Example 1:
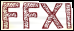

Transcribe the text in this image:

FFXI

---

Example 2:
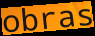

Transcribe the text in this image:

obras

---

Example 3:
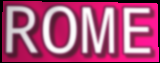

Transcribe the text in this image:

ROME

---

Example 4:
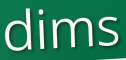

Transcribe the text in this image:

dims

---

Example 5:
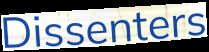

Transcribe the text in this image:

Dissenters